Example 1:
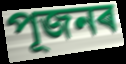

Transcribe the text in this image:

পূজনৰ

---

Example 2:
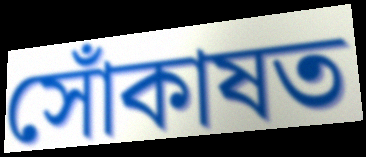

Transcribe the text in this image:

সোঁকাষত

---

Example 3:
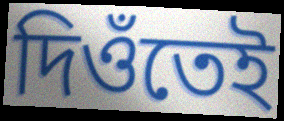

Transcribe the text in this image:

দিওঁতেই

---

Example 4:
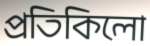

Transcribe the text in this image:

প্ৰতিকিলো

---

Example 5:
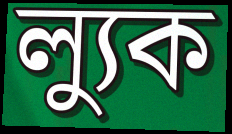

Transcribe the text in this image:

ল্যুক